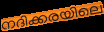
നദിക്കരയിലെ